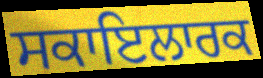
ਸਕਾਇਲਾਰਕ